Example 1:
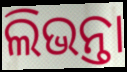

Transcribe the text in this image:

ଲିଭନ୍ତା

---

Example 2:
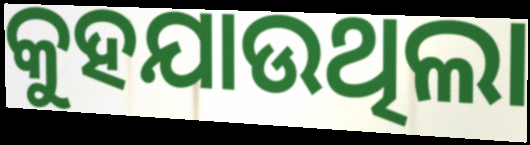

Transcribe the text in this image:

କୁହଯାଉଥିଲା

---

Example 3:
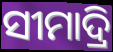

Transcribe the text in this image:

ସୀମାଦ୍ରି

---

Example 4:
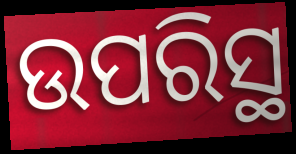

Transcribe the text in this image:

ଉପରିସ୍ଥ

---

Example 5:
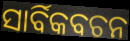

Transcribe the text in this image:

ସାର୍ବିକବଚନ